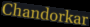
Chandorkar